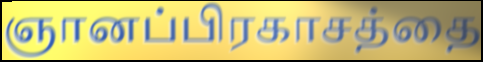
ஞானப்பிரகாசத்தை